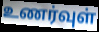
உணர்வுள்